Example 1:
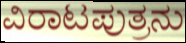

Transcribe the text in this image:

ವಿರಾಟಪುತ್ರನು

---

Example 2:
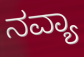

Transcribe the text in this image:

ನವ್ಯಾ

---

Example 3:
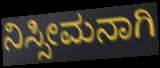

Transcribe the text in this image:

ನಿಸ್ಸೀಮನಾಗಿ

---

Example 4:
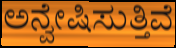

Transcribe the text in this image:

ಅನ್ವೇಷಿಸುತ್ತಿವೆ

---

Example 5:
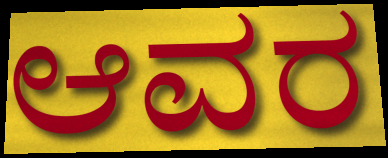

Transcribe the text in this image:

ಆವರ